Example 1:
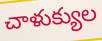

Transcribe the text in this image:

చాళుక్యుల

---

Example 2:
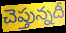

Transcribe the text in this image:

చెప్తున్నదీ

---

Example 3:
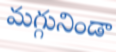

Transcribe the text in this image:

మగ్గునిండా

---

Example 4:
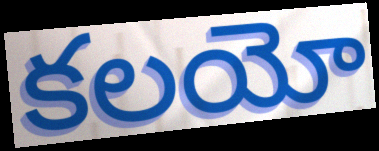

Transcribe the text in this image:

కలయో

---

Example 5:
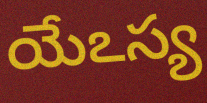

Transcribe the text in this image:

యేఽస్య